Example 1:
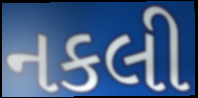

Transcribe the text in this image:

નકલી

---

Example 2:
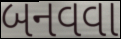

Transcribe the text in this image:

બનવવા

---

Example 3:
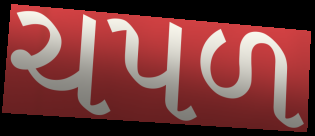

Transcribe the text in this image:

ચપળ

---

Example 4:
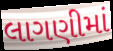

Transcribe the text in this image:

લાગણીમાં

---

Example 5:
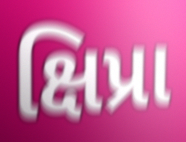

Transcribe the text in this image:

ક્ષિપ્રા